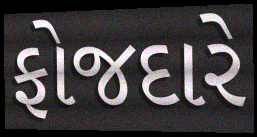
ફોજદારે